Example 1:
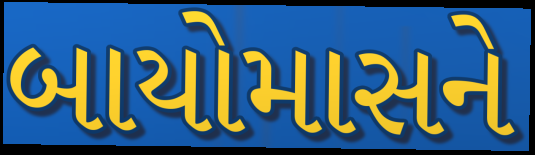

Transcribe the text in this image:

બાયોમાસને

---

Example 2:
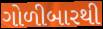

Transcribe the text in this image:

ગોળીબારથી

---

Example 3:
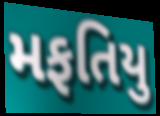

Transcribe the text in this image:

મફતિયુ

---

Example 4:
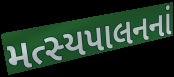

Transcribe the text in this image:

મત્સ્યપાલનનાં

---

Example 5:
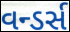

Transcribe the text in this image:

વન્ડર્સ